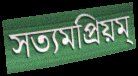
সত্যমপ্রিয়ম্